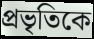
প্রভৃতিকে